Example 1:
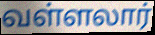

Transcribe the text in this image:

வள்ளலார்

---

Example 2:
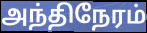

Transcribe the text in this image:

அந்திநேரம்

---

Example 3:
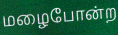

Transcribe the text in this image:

மழைபோன்ற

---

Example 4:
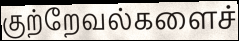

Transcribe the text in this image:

குற்றேவல்களைச்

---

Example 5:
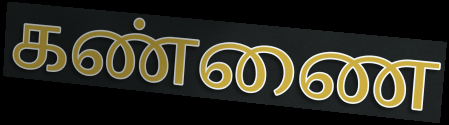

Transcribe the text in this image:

கண்ணை